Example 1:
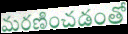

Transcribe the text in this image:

మరణించడంతో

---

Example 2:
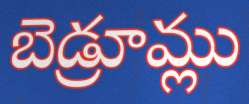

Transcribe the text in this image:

బెడ్రూమ్లు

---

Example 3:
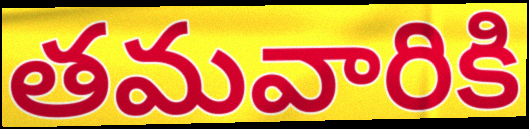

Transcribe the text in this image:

తమవారికి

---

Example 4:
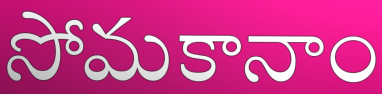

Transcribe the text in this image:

సోమకానాం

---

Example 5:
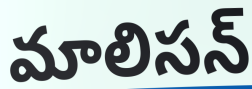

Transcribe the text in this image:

మాలిసన్